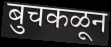
बुचकळून